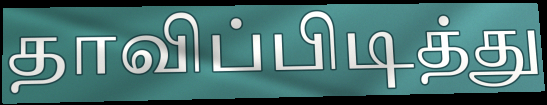
தாவிப்பிடித்து